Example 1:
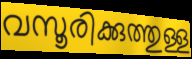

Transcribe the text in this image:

വസൂരിക്കുത്തുള്ള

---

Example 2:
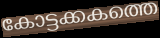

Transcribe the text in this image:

കോട്ടക്കകത്തെ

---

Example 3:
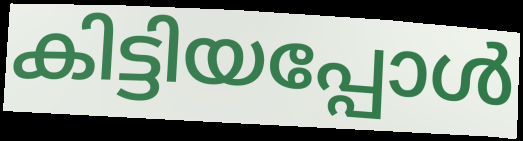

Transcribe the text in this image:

കിട്ടിയപ്പോൾ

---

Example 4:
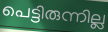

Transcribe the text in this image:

പെട്ടിരുന്നില്ല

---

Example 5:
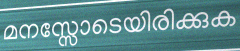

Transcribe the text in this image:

മനസ്സോടെയിരിക്കുക